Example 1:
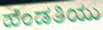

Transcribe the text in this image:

ಹೆಂಡತಿಯು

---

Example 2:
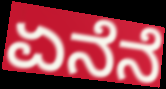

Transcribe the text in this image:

ಏನೆನೆ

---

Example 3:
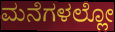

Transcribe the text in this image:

ಮನೆಗಳಲ್ಲೋ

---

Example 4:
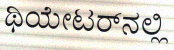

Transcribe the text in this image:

ಥಿಯೇಟರ್‌ನಲ್ಲಿ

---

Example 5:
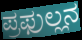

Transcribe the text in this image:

ಪ್ರಫುಲ್ಲನ